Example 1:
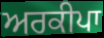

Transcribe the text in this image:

ਅਰਕੀਪਾ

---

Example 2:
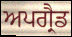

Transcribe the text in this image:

ਅਪਗ੍ਰੈਡ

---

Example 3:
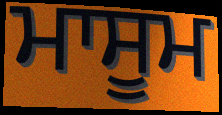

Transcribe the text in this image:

ਮਾਸੂਮ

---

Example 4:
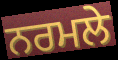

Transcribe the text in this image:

ਨਰਮਲੇ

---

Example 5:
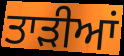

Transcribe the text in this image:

ਤਾੜੀਆਂ